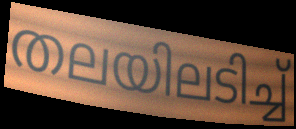
തലയിലടിച്ച്